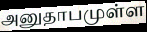
அனுதாபமுள்ள